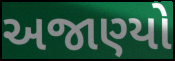
અજાણ્યો